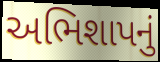
અભિશાપનું